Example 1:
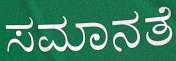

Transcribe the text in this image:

ಸಮಾನತೆ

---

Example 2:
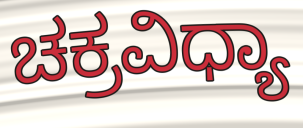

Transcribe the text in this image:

ಚಕ್ರವಿಧ್ಯಾ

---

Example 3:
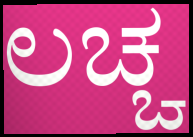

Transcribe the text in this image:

ಲಚ್ಚ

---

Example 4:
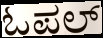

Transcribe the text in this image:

ಓಪಲ್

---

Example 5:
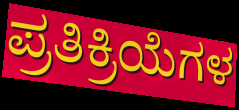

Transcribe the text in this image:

ಪ್ರತಿಕ್ರಿಯೆಗಳ